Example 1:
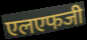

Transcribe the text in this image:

एलएफजी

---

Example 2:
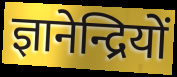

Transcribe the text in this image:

ज्ञानेन्द्रियों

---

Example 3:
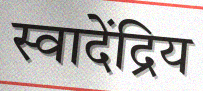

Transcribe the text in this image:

स्वादेंद्रिय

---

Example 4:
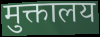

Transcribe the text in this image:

मुक्तालय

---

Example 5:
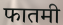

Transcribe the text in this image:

फातमी